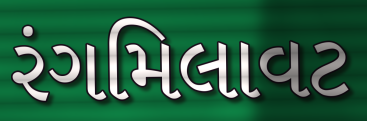
રંગમિલાવટ